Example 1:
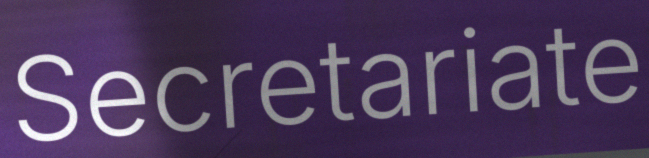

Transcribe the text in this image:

Secretariate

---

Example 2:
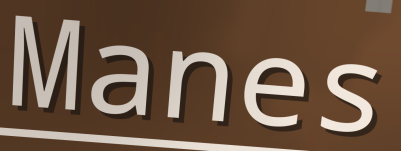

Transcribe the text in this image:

Manes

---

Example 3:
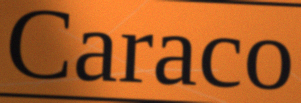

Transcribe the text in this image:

Caraco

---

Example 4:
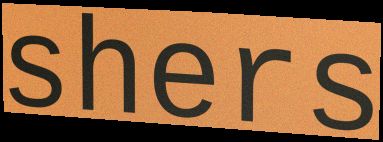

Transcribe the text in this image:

shers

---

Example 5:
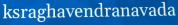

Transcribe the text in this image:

ksraghavendranavada